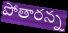
పోతారన్న